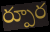
ర్పూర